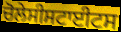
ਚੋਲੇਸੀਸਟਾਈਟਸ